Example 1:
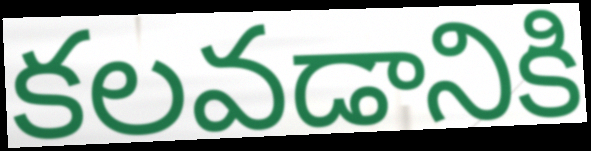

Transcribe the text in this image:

కలవడానికి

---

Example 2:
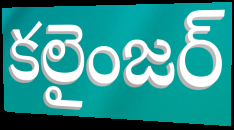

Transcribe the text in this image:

కలైంజర్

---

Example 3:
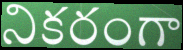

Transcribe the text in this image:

నికరంగా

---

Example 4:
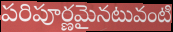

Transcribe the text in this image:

పరిపూర్ణమైనటువంటి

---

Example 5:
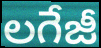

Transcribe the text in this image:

లగేజీ